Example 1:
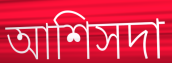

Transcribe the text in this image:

আশিসদা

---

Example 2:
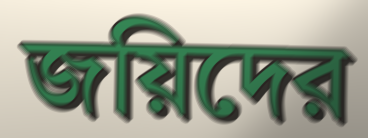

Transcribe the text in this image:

জয়িদের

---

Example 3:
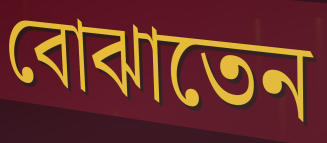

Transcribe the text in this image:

বোঝাতেন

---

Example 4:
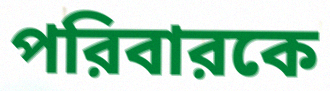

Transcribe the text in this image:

পরিবারকে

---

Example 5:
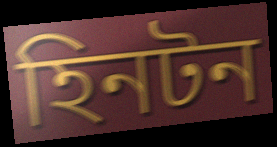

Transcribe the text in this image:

হিনটন